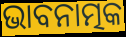
ଭାବନାତ୍ମକ